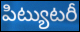
పిట్యుటరీ